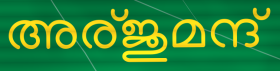
അര്ജുമന്ദ്